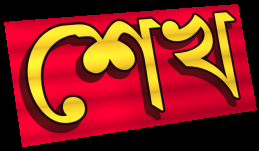
শেখ